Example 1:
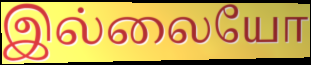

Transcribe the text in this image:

இல்லையோ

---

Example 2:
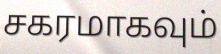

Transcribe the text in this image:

சகரமாகவும்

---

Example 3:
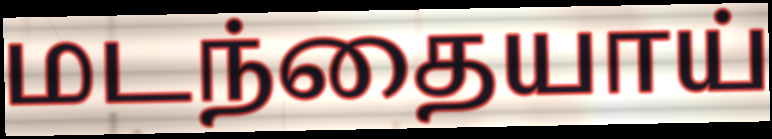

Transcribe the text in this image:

மடந்தையாய்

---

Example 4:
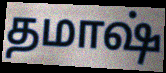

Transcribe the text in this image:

தமாஷ்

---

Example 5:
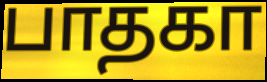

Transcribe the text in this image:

பாதகா